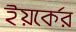
ইয়র্কের